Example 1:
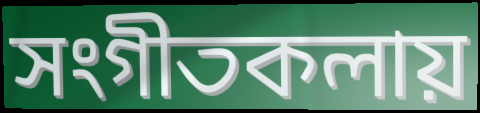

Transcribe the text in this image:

সংগীতকলায়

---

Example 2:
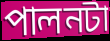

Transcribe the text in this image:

পালনটা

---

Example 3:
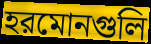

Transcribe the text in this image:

হরমোনগুলি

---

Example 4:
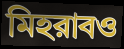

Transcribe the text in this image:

মিহরাবও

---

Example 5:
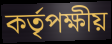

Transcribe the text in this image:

কর্তৃপক্ষীয়